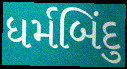
ધર્મબિંદુ